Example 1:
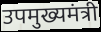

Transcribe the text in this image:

उपमुख्यमंत्री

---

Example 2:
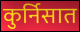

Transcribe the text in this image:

कुर्निसात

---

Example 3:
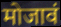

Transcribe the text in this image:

मोजावं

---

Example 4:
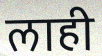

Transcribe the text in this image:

लाही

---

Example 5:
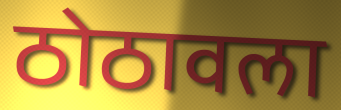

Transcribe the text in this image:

ठोठावला